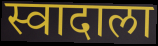
स्वादाला